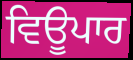
ਵਿਊਪਾਰ